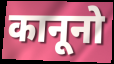
कानूनो